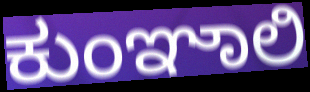
ಕುಂಞಾಲಿ